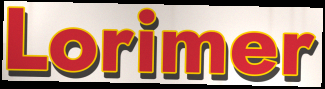
Lorimer